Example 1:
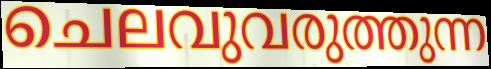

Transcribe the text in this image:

ചെലവുവരുത്തുന്ന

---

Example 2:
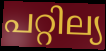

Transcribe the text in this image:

പറ്റില്യ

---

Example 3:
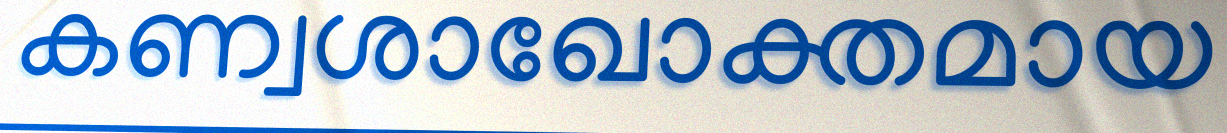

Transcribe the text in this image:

കണ്വശാഖോക്തമായ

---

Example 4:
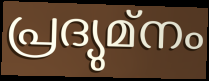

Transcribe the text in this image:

പ്രദ്യുമ്നം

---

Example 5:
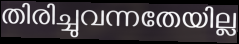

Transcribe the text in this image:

തിരിച്ചുവന്നതേയില്ല